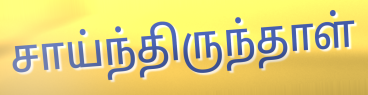
சாய்ந்திருந்தாள்